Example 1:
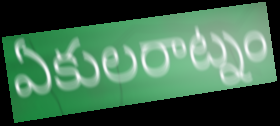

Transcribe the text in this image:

ఏకులరాట్నం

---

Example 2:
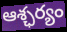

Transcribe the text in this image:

ఆశ్ఛర్యం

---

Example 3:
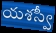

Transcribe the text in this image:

యశస్వీ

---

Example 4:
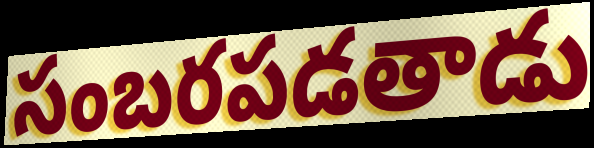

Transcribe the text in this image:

సంబరపడతాడు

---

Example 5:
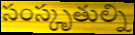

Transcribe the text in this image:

సంస్కృతుల్ని